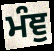
ਮੰਞੁ